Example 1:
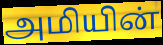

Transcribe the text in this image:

அமியின்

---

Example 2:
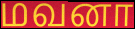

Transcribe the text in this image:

மவனா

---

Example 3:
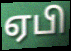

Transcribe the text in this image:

ஏபி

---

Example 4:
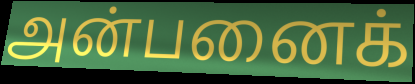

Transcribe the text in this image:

அன்பனைக்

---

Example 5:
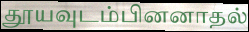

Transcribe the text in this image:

தூயவுடம்பினனாதல்